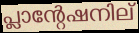
പ്ലാന്റേഷനില്